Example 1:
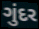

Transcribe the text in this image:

ગુંદર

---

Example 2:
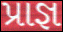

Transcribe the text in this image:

પ્રાજ્ઞ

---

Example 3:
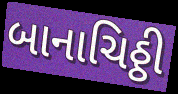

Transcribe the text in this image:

બાનાચિઠ્ઠી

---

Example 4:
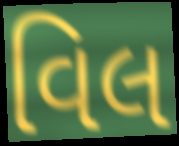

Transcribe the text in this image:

વિલ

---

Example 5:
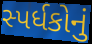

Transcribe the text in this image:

સ્પર્ધકોનું